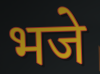
भजे